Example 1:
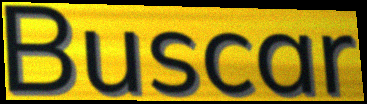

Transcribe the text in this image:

Buscar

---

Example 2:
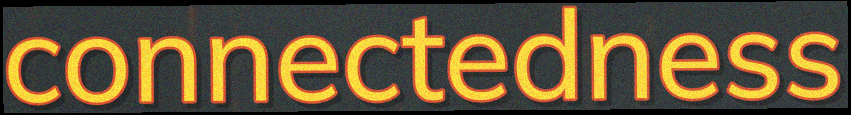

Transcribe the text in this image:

connectedness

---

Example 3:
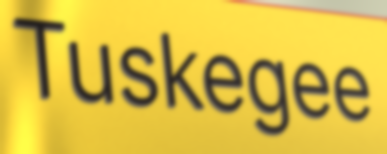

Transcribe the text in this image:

Tuskegee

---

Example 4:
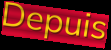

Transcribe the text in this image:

Depuis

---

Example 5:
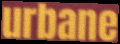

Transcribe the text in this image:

urbane